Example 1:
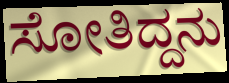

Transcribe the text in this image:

ಸೋತಿದ್ದನು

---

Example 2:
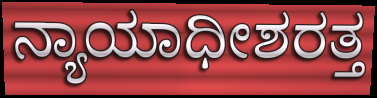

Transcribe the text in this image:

ನ್ಯಾಯಾಧೀಶರತ್ತ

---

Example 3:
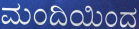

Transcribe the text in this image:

ಮಂದಿಯಿಂದ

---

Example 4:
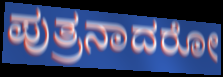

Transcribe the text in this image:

ಪುತ್ರನಾದರೋ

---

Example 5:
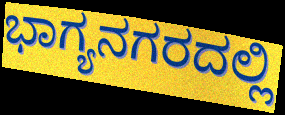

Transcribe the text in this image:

ಭಾಗ್ಯನಗರದಲ್ಲಿ